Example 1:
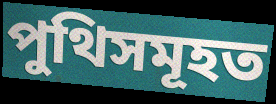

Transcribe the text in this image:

পুথিসমূহত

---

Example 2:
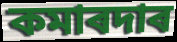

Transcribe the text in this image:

কমাৰদাৰ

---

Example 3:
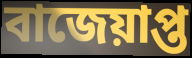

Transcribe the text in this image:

বাজেয়াপ্ত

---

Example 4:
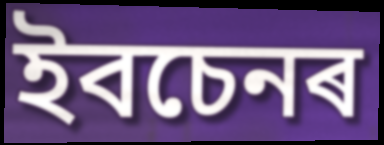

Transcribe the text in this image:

ইবচেনৰ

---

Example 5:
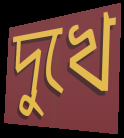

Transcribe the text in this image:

দুখে